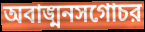
অবাঙ্মনসগোচর